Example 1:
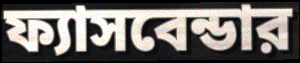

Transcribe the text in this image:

ফ্যাসবেন্ডার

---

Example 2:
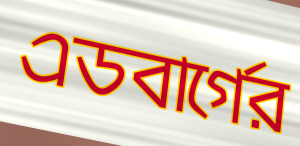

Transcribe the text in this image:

এডবার্গের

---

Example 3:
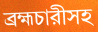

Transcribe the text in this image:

ব্রহ্মচারীসহ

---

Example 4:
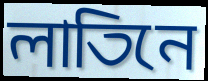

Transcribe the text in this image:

লাতিনে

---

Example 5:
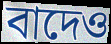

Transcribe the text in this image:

বাদেও